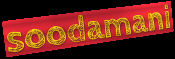
soodamani